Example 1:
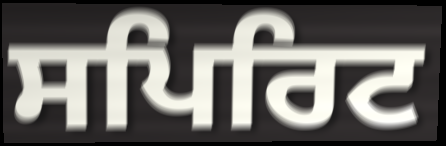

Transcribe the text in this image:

ਸਪਿਰਿਟ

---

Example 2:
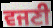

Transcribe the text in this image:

ਵਜਣੀ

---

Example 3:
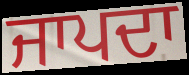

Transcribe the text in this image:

ਜਾਪਦਾ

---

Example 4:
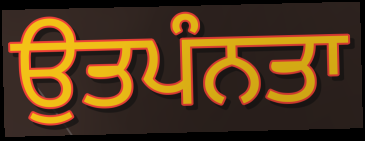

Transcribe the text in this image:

ਉਤਪੰਨਤਾ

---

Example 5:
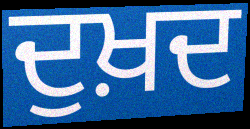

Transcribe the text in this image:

ਦੁਖ਼ਦ